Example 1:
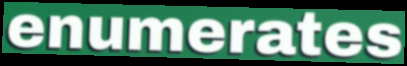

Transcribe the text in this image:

enumerates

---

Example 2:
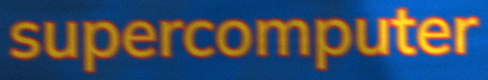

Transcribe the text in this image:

supercomputer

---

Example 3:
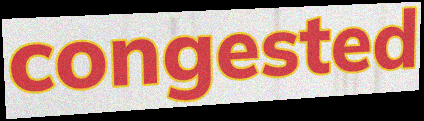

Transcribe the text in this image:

congested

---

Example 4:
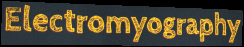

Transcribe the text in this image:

Electromyography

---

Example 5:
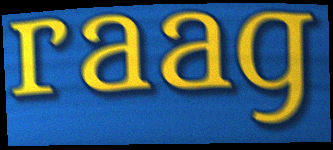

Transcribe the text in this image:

raag